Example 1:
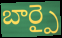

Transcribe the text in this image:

బార్పై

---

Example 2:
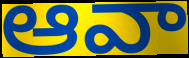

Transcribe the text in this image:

ఆవా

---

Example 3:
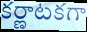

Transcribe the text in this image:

కర్ణాటకగా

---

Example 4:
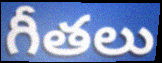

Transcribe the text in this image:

గీతలు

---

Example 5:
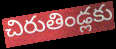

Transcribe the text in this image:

చిరుతిండ్లకు